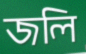
জলি